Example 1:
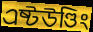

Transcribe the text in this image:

এষ্টউণ্ডিং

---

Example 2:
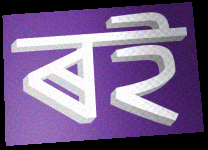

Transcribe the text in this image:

ৰই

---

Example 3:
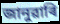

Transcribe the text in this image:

জানুৱাৰি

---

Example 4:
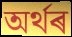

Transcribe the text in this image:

অৰ্থৰ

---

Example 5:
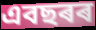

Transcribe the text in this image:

এবছৰৰ